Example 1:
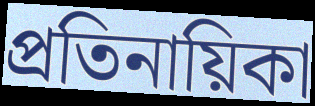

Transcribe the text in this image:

প্রতিনায়িকা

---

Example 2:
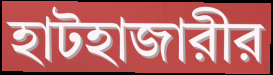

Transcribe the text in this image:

হাটহাজারীর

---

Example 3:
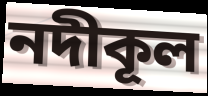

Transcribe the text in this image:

নদীকূল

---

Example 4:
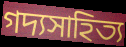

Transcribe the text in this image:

গদ্যসাহিত্য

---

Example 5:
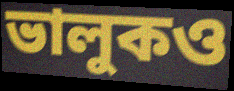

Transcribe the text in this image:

ভালুকও